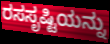
ರಸಸೃಷ್ಟಿಯನ್ನು